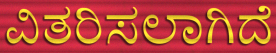
ವಿತರಿಸಲಾಗಿದೆ